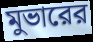
মুভারের